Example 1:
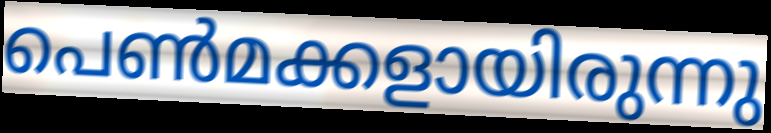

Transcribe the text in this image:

പെൺമക്കളായിരുന്നു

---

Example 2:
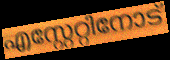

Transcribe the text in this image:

എസ്റ്റേറ്റിനോട്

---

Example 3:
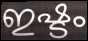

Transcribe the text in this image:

ഇഷ്ടം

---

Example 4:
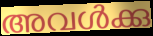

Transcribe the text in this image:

അവൾക്കു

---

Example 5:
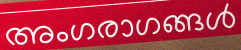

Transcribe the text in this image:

അംഗരാഗങ്ങൾ